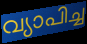
വ്യാപിച്ച